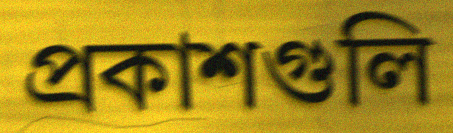
প্রকাশগুলি